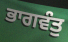
ਭਾਗਵੰਤੁ